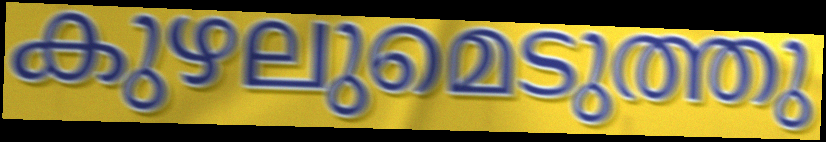
കുഴലുമെടുത്തു